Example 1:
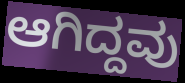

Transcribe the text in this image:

ಆಗಿದ್ದವು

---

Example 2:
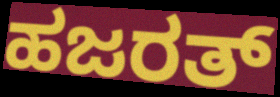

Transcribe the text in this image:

ಹಜರತ್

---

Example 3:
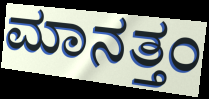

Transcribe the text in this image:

ಮಾನತ್ತಂ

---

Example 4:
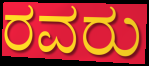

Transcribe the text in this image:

ರವರು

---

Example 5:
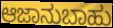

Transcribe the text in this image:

ಆಜಾನುಬಾಹು